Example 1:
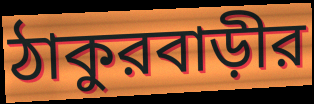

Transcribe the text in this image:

ঠাকুরবাড়ীর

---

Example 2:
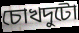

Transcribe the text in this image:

চোখদুটো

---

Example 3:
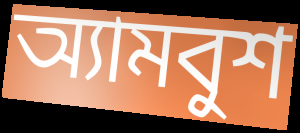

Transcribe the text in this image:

অ্যামবুশ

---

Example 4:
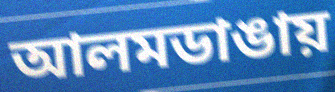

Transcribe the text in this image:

আলমডাঙায়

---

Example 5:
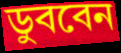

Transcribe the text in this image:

ডুববেন